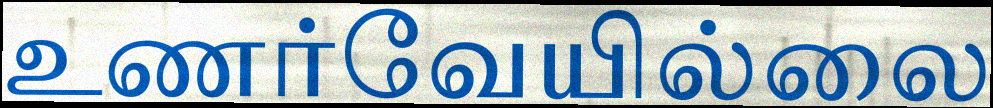
உணர்வேயில்லை